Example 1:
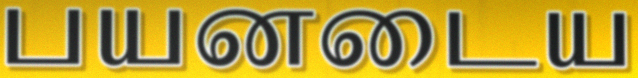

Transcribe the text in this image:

பயனடைய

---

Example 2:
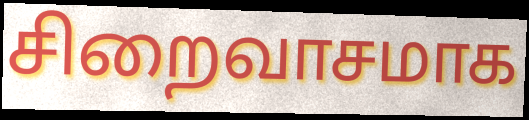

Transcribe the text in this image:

சிறைவாசமாக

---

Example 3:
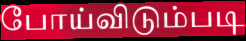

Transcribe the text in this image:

போய்விடும்படி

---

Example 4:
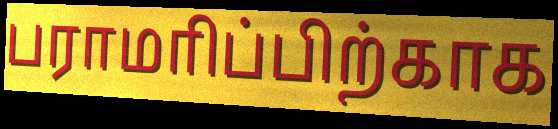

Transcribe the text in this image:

பராமரிப்பிற்காக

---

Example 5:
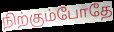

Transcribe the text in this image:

நிற்கும்போதே